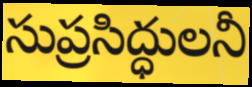
సుప్రసిద్ధులనీ